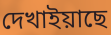
দেখাইয়াছে